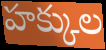
హక్కుల